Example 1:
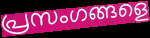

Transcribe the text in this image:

പ്രസംഗങ്ങളെ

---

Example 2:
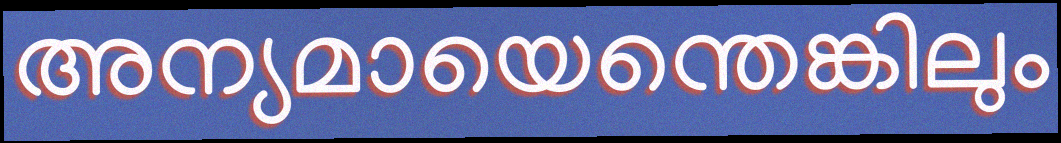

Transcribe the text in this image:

അന്യമായെന്തെങ്കിലും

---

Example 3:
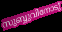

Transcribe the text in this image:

സുബ്ബുവിനോടു്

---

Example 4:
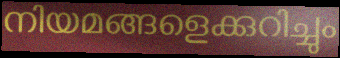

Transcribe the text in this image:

നിയമങ്ങളെക്കുറിച്ചും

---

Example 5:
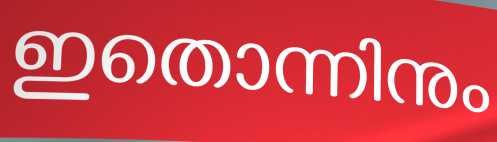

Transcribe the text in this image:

ഇതൊന്നിനും